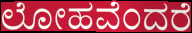
ಲೋಹವೆಂದರೆ